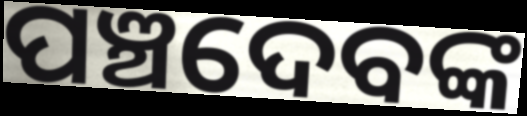
ପଞ୍ଚଦେବଙ୍କ